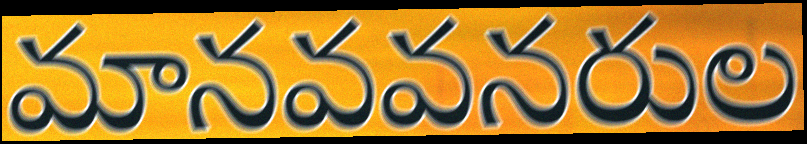
మానవవనరుల